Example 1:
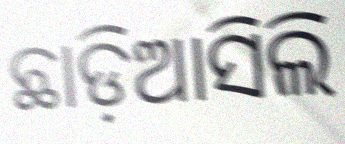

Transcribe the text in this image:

ଛାଡ଼ିଆସିଲି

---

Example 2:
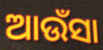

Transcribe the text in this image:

ଆଉଁସା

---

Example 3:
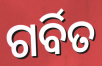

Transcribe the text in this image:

ଗର୍ବିତ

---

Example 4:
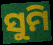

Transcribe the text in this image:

ସୁମି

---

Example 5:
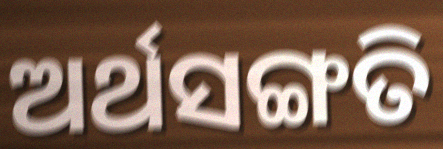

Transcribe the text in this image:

ଅର୍ଥସଙ୍ଗତି